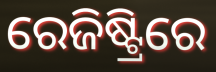
ରେଜିଷ୍ଟ୍ରିରେ